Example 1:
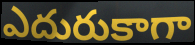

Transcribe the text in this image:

ఎదురుకాగా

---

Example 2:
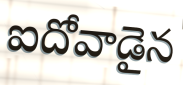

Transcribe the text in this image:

ఐదోవాడైన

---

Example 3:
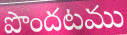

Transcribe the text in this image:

పొందటము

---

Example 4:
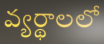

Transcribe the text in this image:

వ్యర్థాలలో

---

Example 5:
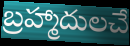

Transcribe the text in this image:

బ్రహ్మాదులచే